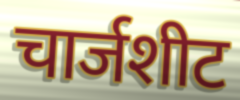
चार्जशीट